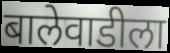
बालेवाडीला